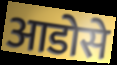
आडोसे